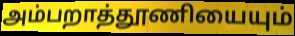
அம்பறாத்தூணியையும்